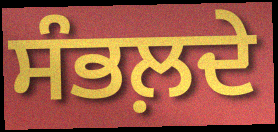
ਸੰਭਲ਼ਦੇ